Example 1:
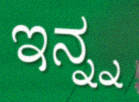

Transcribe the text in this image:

ಇನ್ನ್ನ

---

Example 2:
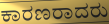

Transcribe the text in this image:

ಕಾರಣರಾದರು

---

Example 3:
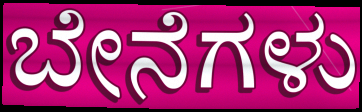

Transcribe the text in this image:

ಬೇನೆಗಳು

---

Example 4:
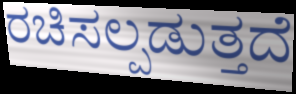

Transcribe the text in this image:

ರಚಿಸಲ್ಪಡುತ್ತದೆ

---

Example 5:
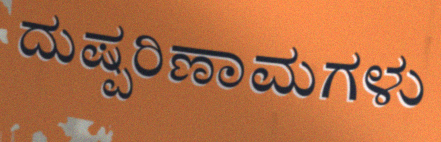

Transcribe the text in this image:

ದುಷ್ಪರಿಣಾಮಗಳು